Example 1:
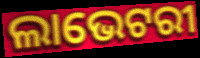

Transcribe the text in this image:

ଲାଭେଟରୀ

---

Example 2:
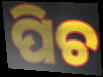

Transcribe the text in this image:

ପିଚ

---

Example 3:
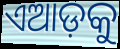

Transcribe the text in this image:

ଏଆଡ଼କୁ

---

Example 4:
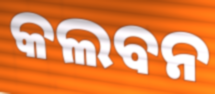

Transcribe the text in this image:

କଲବନ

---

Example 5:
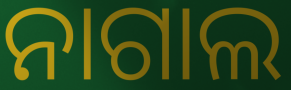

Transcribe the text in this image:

ନାଗାଲ